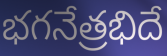
భగనేత్రభిదే